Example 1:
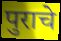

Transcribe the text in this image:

पुराचे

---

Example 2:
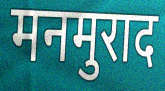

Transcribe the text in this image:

मनमुराद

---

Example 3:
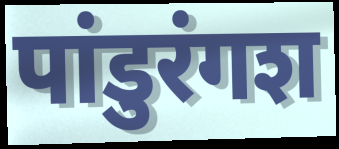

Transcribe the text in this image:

पांडुरंगश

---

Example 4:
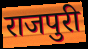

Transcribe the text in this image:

राजपुरी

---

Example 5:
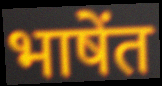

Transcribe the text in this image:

भाषेंत